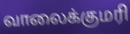
வாலைக்குமரி